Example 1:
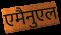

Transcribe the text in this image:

एमैनुएल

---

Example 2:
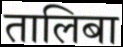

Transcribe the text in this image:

तालिबा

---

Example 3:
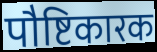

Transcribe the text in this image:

पौष्टिकारक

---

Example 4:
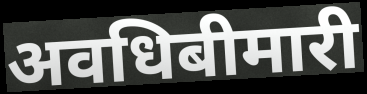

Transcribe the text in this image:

अवधिबीमारी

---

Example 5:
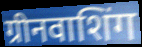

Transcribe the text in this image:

ग्रीनवाशिंग